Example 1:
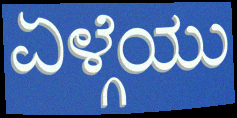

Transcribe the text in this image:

ಏಳ್ಗೆಯು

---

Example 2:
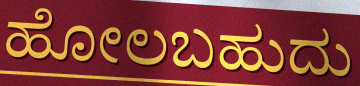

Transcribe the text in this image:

ಹೋಲಬಹುದು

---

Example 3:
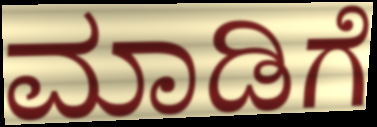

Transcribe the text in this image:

ಮಾಡಿಗೆ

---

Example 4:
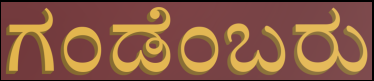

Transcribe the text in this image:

ಗಂಡೆಂಬರು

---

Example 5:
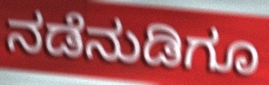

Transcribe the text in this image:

ನಡೆನುಡಿಗೂ